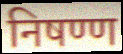
निषण्ण